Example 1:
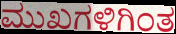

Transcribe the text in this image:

ಮುಖಗಳಿಗಿಂತ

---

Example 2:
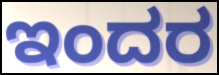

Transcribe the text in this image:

ಇಂದರ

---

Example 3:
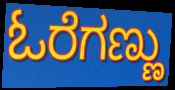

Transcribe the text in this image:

ಓರೆಗಣ್ಣು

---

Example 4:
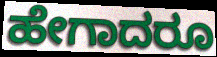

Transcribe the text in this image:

ಹೇಗಾದರೂ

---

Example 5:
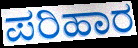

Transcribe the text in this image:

ಪರಿಹಾರ